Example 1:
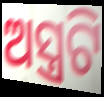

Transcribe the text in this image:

ଅସ୍ତ୍ରଟି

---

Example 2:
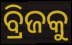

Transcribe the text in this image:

ବ୍ରିଜକୁ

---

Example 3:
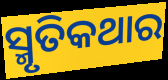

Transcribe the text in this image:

ସ୍ମୃତିକଥାର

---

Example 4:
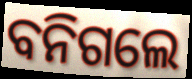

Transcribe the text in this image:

ବନିଗଲେ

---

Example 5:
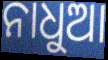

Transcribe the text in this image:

ନାଧୁଆ